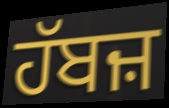
ਹੱਬਜ਼